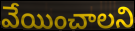
వేయించాలని